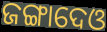
ଜଙ୍ଗାଦେଓ